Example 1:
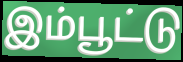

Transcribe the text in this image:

இம்பூட்டு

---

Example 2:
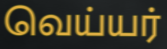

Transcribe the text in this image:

வெய்யர்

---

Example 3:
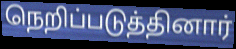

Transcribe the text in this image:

நெறிப்படுத்தினார்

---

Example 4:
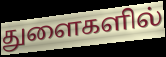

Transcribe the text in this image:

துளைகளில்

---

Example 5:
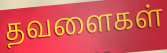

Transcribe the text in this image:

தவளைகள்